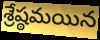
శ్రేష్ఠమయిన